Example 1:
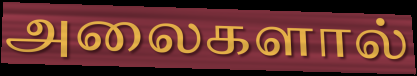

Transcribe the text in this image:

அலைகளால்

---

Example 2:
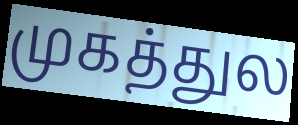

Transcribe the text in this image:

முகத்துல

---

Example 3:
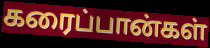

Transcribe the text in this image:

கரைப்பான்கள்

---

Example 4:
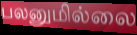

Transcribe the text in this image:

பலனுமில்லை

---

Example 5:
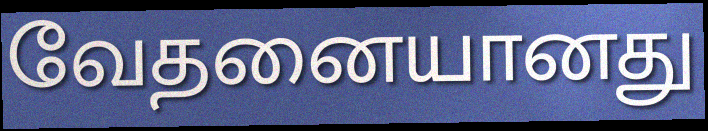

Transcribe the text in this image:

வேதனையானது